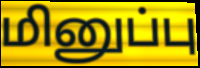
மினுப்பு